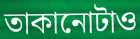
তাকানোটাও